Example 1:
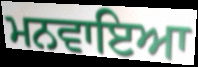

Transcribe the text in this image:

ਮਨਵਾਇਆ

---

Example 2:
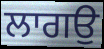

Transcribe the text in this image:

ਲਾਗਉ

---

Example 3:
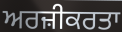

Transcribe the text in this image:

ਅਰਜ਼ੀਕਰਤਾ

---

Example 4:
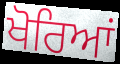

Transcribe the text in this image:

ਖੋਰਿਆਂ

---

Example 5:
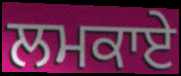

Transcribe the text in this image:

ਲਮਕਾਏ